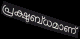
പ്രക്ഷുബ്ധമാണ്